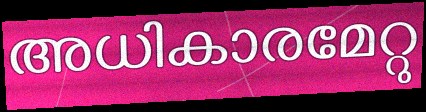
അധികാരമേറ്റു